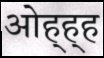
ओह्ह्ह